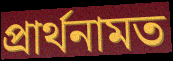
প্রার্থনামত